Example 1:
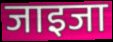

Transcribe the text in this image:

जाइजा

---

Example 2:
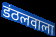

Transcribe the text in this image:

डंठलवाला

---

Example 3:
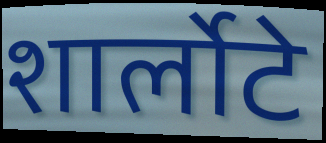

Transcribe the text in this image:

शार्लोटे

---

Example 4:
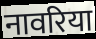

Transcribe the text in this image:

नावरिया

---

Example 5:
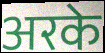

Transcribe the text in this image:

अरके